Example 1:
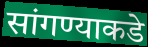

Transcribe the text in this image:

सांगण्याकडे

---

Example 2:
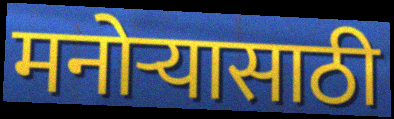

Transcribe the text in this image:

मनोऱ्यासाठी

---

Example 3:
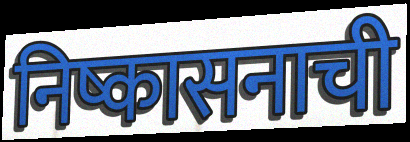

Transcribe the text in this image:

निष्कासनाची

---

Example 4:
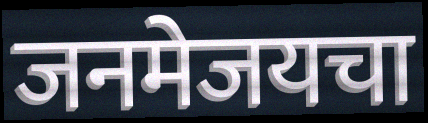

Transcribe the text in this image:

जनमेजयचा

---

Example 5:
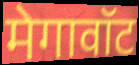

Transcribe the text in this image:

मेगावॉट